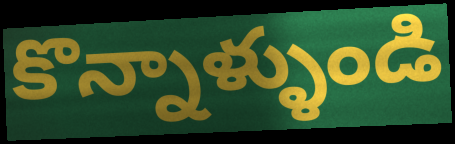
కొన్నాళ్ళుండి